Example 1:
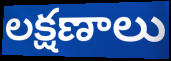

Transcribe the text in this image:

లక్షణాలు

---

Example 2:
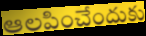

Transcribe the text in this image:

ఆలపించేందుకు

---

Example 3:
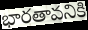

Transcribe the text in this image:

భారతావనికి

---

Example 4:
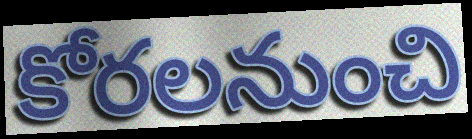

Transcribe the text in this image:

కోరలనుంచి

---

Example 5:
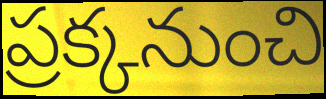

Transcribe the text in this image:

ప్రక్కనుంచి